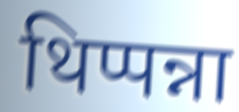
थिप्पन्ना